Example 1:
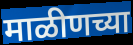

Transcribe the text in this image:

माळीणच्या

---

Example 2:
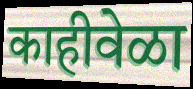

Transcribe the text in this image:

काहीवेळा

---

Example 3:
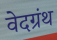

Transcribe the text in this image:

वेदग्रंथ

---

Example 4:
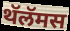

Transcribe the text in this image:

थॅलॅमस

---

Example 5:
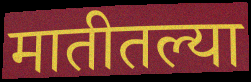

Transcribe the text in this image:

मातीतल्या